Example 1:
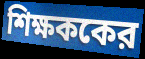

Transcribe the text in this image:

শিক্ষককের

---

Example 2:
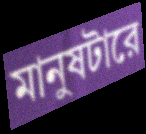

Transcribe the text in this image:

মানুষটারে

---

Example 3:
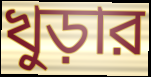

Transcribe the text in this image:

খুড়ার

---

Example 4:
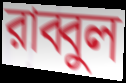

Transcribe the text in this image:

রাব্বুল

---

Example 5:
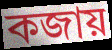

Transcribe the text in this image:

কজায়